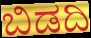
ಬಿಡದಿ